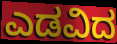
ಎಡವಿದ